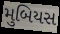
મુબિયસ